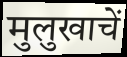
मुलुखाचें